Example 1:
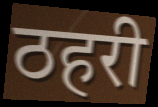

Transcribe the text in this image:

ठहरी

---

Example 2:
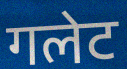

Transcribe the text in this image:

गलेट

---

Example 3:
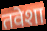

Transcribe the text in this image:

तवेशा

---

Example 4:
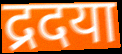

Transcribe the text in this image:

द्रदया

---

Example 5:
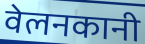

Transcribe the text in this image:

वेलनकानी